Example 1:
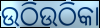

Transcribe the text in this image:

ଉଠିଉଠିକା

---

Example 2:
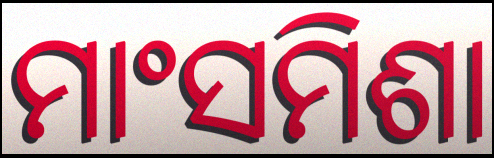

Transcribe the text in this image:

ମାଂସମିଶା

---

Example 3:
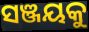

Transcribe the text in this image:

ସଞ୍ଜୟକୁ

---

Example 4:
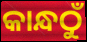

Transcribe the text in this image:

କାନ୍ଧଠୁଁ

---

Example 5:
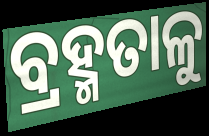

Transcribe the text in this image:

ବ୍ରହ୍ମତାଳୁ